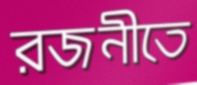
রজনীতে